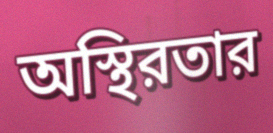
অস্থিরতার